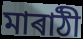
মাৰাঠী